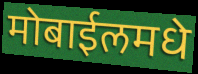
मोबाईलमधे